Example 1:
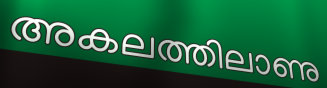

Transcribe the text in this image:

അകലത്തിലാണു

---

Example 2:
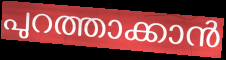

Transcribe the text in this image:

പുറത്താക്കാൻ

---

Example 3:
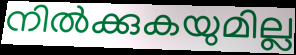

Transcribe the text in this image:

നിൽക്കുകയുമില്ല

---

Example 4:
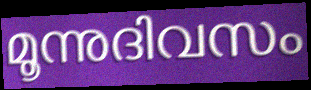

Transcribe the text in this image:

മൂന്നുദിവസം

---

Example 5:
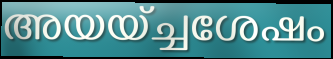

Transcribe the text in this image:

അയയ്ച്ചശേഷം